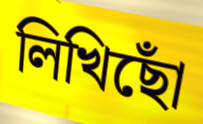
লিখিছোঁ